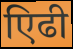
एिढी